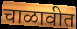
चाळावीत